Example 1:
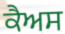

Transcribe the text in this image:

ਕੈਅਸ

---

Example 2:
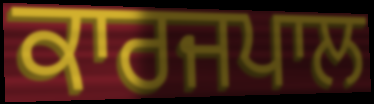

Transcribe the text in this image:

ਕਾਰਜਪਾਲ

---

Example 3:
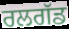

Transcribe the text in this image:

ਰਲਗੱਡ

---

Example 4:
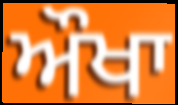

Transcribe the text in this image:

ਔਖਾ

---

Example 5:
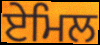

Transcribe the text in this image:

ਏਮਿਲ